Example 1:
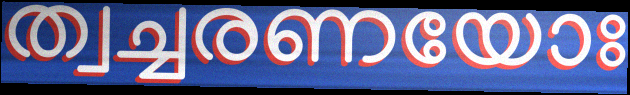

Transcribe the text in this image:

ത്വച്ചരണയോഃ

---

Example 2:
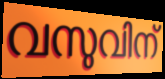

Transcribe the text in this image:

വസുവിന്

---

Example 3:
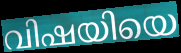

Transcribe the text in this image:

വിഷയിയെ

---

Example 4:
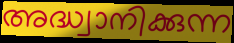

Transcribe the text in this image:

അദ്ധ്വാനിക്കുന്ന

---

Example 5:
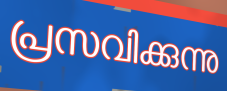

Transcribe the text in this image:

പ്രസവിക്കുന്നു